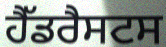
ਹੈੱਡਰੈਸਟਸ